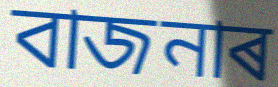
বাজনাৰ